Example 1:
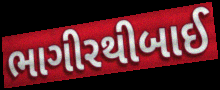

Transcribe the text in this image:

ભાગીરથીબાઈ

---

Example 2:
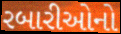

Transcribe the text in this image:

રબારીઓનો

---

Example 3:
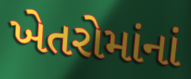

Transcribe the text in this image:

ખેતરોમાંનાં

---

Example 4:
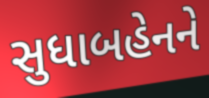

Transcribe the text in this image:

સુધાબહેનને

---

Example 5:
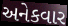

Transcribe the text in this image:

અનેકવાર